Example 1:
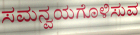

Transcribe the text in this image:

ಸಮನ್ವಯಗೊಳಿಸುವ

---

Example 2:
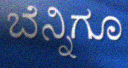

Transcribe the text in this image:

ಬೆನ್ನಿಗೂ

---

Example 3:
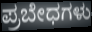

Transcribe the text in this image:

ಪ್ರಬೇಧಗಳು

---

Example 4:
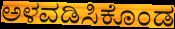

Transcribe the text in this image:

ಅಳವಡಿಸಿಕೊಂಡ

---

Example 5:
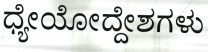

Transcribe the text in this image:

ಧ್ಯೇಯೋದ್ದೇಶಗಳು